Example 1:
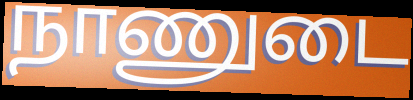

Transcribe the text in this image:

நாணுடை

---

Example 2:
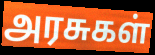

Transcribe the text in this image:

அரசுகள்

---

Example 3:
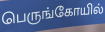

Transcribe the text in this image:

பெருங்கோயில்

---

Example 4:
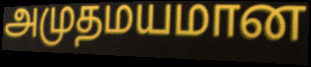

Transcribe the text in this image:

அமுதமயமான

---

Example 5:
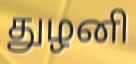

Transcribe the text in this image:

துழனி